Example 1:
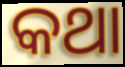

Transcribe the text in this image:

କଥା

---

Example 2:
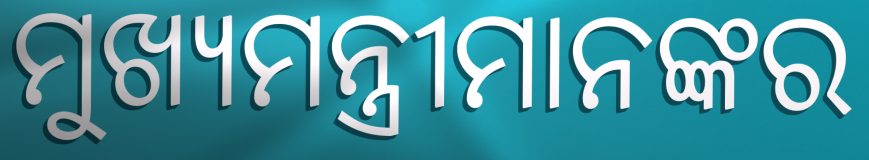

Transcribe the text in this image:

ମୁଖ୍ୟମନ୍ତ୍ରୀମାନଙ୍କର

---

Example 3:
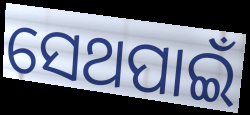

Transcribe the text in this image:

ସେଥପାଇଁ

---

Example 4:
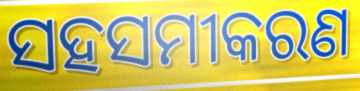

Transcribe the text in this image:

ସହସମୀକରଣ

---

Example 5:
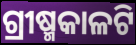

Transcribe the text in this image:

ଗ୍ରୀଷ୍ମକାଳଟି